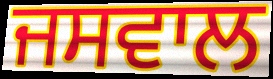
ਜਸਵਾਲ